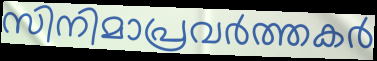
സിനിമാപ്രവർത്തകർ